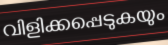
വിളിക്കപ്പെടുകയും